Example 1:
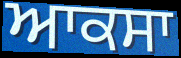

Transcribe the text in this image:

ਆਕਸਾ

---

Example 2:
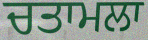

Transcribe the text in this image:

ਚਤਾਮਲਾ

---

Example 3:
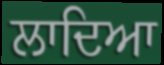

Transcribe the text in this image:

ਲਾਦਿਆ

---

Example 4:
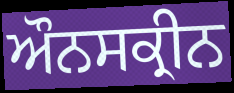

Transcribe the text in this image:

ਔਨਸਕ੍ਰੀਨ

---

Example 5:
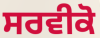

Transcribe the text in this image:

ਸਰਵੀਕੋ